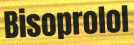
Bisoprolol